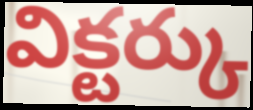
విక్టర్కు